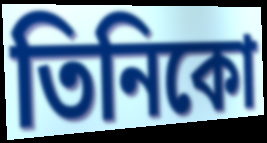
তিনিকো